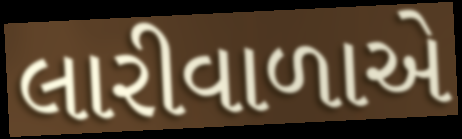
લારીવાળાએ